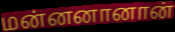
மன்னனானான்